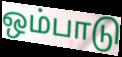
ஒம்பாடு